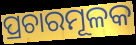
ପ୍ରଚାରମୂଳକ